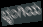
ಭೃಂಗಿಯ